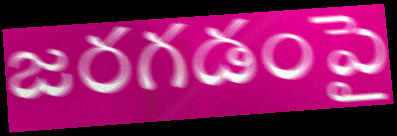
జరగడంపై